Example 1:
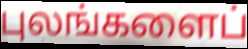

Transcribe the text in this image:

புலங்களைப்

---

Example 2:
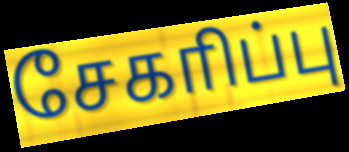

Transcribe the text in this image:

சேகரிப்பு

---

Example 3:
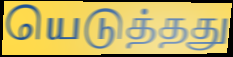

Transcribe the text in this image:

யெடுத்தது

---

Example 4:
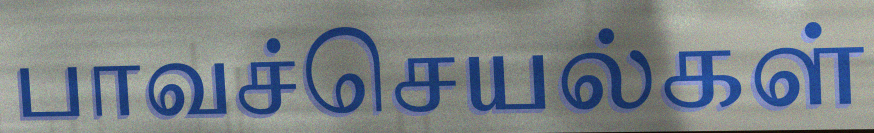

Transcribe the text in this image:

பாவச்செயல்கள்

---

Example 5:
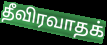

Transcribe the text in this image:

தீவிரவாதக்